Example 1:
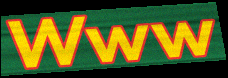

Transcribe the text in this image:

Www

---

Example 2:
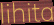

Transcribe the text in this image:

lihita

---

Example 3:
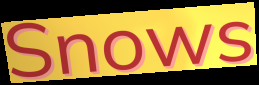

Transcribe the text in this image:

Snows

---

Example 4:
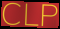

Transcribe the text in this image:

CLP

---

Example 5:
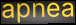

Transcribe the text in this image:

apnea